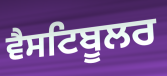
ਵੈਸਟਿਬੂਲਰ